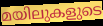
മയിലുകളുടെ